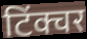
टिंक्चर